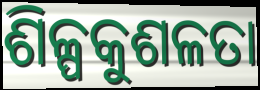
ଶିଳ୍ପକୁଶଳତା